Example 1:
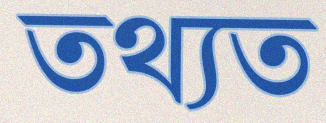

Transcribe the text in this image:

তথ্যত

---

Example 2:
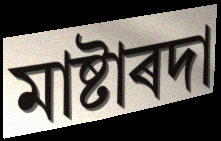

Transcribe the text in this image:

মাষ্টাৰদা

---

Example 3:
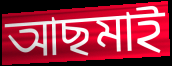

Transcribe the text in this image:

আছমাই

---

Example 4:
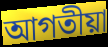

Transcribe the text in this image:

আগতীয়া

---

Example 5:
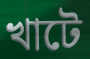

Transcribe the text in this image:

খাটে